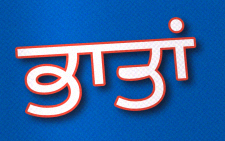
ਭਾਤਾਂ